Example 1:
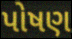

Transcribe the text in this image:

પોષણ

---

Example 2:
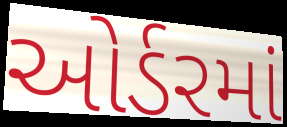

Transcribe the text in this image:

ઓર્ડરમાં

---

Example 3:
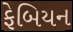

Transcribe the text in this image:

ફેબિયન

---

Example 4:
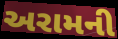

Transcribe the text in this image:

અરામની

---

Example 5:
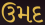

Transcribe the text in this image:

ઉમદ